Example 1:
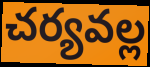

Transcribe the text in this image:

చర్యవల్ల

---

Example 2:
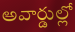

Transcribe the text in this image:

అవార్డుల్లో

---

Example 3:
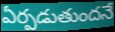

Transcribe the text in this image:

ఏర్పడుతుందనే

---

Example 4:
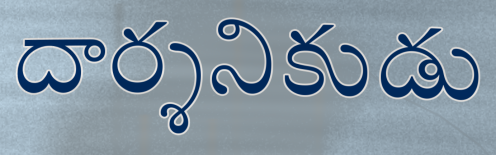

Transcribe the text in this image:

దార్శనికుడు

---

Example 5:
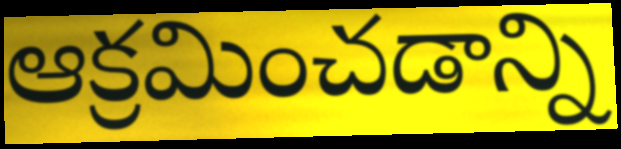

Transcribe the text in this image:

ఆక్రమించడాన్ని